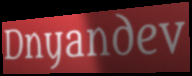
Dnyandev